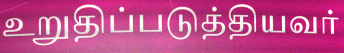
உறுதிப்படுத்தியவர்